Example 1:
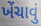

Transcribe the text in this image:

ખેંચાવું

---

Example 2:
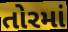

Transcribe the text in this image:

તોરમાં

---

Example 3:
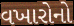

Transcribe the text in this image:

વખારોનો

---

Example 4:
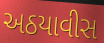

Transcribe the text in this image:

અઠયાવીસ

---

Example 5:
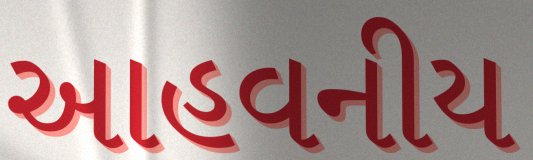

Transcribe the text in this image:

આહવનીય